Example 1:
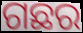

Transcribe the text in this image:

ଗଛର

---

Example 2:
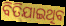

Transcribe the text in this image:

ବିତିଯାଇଥିବ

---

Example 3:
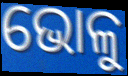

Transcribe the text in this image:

ଭୋଳୁ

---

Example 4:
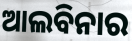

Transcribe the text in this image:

ଆଲବିନାର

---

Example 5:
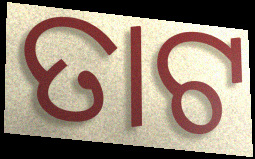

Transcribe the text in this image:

ତାଟ